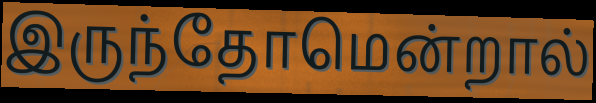
இருந்தோமென்றால்